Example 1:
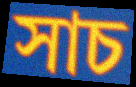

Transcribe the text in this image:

সাচ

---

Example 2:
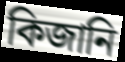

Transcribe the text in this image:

কিজানি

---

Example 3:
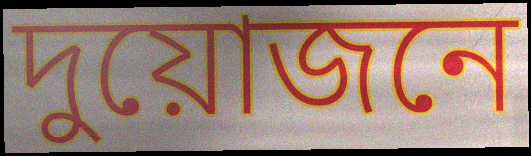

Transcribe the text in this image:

দুয়োজনে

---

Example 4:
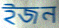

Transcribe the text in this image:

ইজন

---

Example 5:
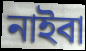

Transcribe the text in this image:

নাইবা